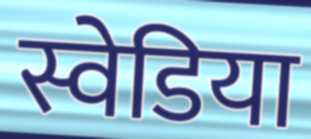
स्वेडिया